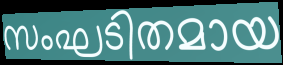
സംഘടിതമായ